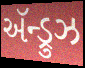
ઍન્ડ્રુઝ